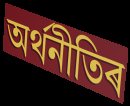
অৰ্থনীতিৰ